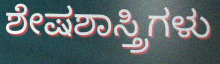
ಶೇಷಶಾಸ್ತ್ರಿಗಳು